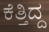
ಕೆತ್ತಿದ್ದ